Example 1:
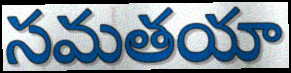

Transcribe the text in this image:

సమతయా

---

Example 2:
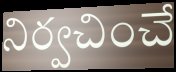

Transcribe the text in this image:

నిర్వచించే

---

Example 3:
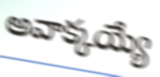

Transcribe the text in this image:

అవాక్కయ్యే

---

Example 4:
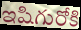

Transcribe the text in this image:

ఇషిగురోకి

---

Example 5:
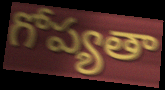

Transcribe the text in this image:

గోప్యతా